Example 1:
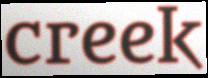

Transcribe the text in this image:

creek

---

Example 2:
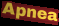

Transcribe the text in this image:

Apnea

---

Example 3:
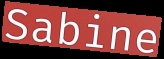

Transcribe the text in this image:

Sabine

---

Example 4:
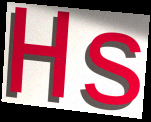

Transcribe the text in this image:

Hs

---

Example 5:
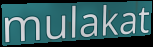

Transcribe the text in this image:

mulakat